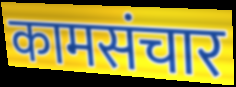
कामसंचार